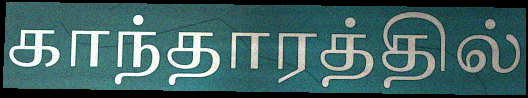
காந்தாரத்தில்